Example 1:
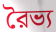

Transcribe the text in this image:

রৈভ্য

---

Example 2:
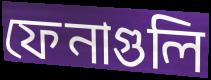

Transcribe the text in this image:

ফেনাগুলি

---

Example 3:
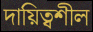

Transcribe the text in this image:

দায়িত্বশীল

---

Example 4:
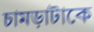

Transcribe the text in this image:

চামড়াটাকে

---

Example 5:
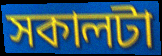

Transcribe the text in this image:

সকালটা